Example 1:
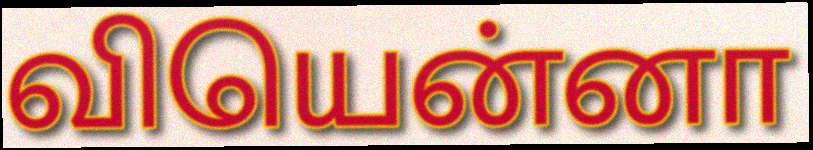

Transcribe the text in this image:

வியென்னா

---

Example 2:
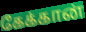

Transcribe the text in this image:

கேக்கான்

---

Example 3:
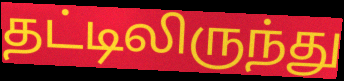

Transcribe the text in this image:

தட்டிலிருந்து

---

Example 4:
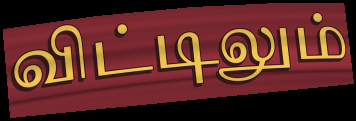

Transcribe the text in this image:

விட்டிலும்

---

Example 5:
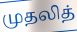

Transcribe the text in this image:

முதலித்